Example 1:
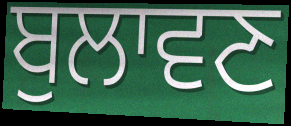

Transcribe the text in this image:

ਬੁਲਾਵਣ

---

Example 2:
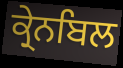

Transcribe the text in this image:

ਕ੍ਰੇਨਬਿਲ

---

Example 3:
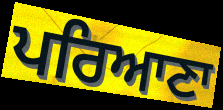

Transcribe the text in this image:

ਪਰਿਆਣਾ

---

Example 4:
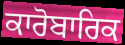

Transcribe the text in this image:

ਕਾਰੋਬਾਰਿਕ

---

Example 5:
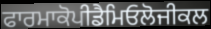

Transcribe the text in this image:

ਫਾਰਮਾਕੋਪੀਡੈਮਿਓਲੋਜੀਕਲ